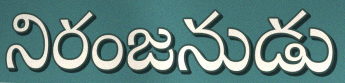
నిరంజనుడు